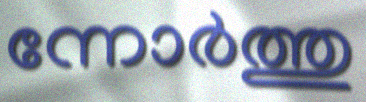
ന്നോർത്തു